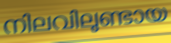
നിലവിലുണ്ടായ